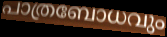
പാത്രബോധവും